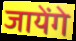
जायेंगे